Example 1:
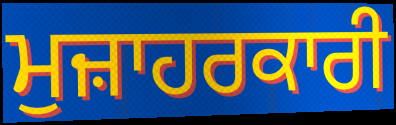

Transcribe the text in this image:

ਮੁਜ਼ਾਹਰਕਾਰੀ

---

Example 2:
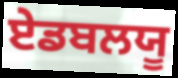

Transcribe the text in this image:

ਏਡਬਲਯੂ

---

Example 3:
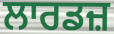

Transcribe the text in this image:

ਲਾਰਡਜ਼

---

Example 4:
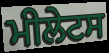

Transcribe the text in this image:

ਮੀਲੇਟਸ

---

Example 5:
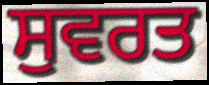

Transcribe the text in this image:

ਸੁਵਰਤ